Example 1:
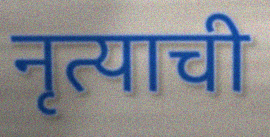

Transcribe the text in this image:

नृत्याची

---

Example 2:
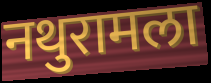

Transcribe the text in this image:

नथुरामला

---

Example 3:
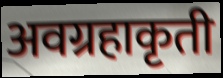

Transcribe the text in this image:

अवग्रहाकृती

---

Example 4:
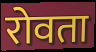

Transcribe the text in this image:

रोवता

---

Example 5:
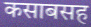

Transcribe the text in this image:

कसाबसह